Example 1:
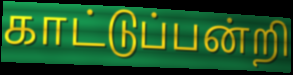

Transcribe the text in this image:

காட்டுப்பன்றி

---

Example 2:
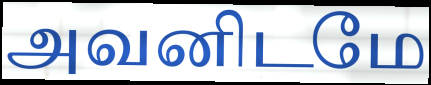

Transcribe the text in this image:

அவனிடமே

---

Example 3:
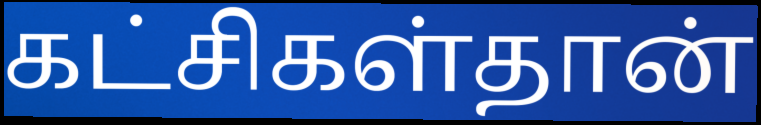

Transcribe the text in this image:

கட்சிகள்தான்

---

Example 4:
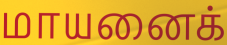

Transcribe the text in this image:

மாயனைக்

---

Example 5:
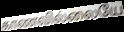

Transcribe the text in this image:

காணவில்லையே